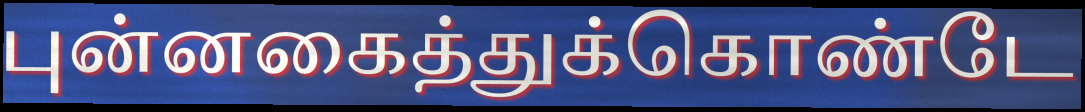
புன்னகைத்துக்கொண்டே